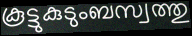
കൂട്ടുകുടുംബസ്വത്തു